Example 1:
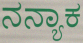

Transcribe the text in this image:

ನನ್ಯಾಕ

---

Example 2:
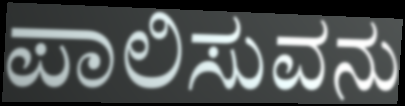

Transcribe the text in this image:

ಪಾಲಿಸುವನು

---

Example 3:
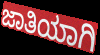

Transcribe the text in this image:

ಜಾತಿಯಾಗಿ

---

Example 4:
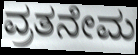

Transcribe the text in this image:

ವ್ರತನೇಮ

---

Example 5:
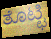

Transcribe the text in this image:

ತೊಟ್ಟಿ